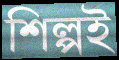
শিল্পই